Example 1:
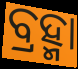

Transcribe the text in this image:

ବ୍ରହ୍ମା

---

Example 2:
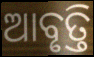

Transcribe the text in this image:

ଆବୃତ୍ତି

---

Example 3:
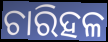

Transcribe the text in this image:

ଚାରିହଳ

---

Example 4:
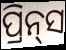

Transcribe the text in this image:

ପ୍ରିନ୍‍ସ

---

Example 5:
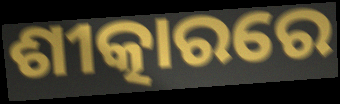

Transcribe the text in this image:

ଶୀତ୍କାରରେ